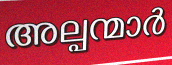
അല്പന്മാർ